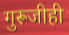
गुरूजीही